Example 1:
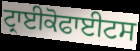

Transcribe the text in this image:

ਟ੍ਰਾਈਕੋਫਾਈਟਸ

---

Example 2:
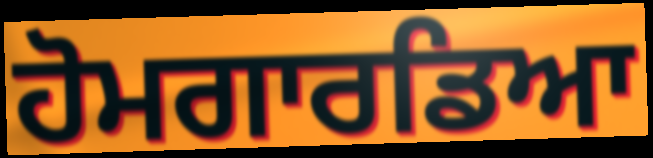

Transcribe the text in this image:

ਹੋਮਗਾਰਡਿਆ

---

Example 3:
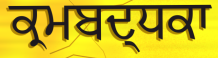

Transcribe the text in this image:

ਕ੍ਰਮਬਦ੍ਧਕਾ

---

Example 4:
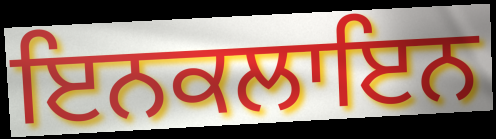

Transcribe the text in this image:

ਇਨਕਲਾਇਨ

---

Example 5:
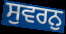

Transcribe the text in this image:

ਸੁਵਰਨੁ